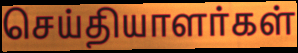
செய்தியாளர்கள்